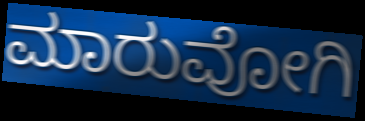
ಮಾರುವೋಗಿ